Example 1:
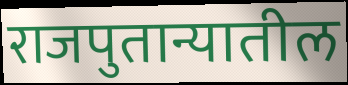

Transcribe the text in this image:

राजपुतान्यातील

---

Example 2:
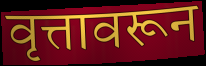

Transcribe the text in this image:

वृत्तावरून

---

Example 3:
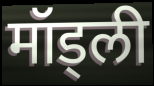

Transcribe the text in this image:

मॉड्ली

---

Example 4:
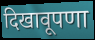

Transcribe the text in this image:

दिखावूपणा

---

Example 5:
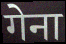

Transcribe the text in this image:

गेना